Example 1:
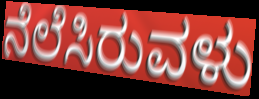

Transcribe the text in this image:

ನೆಲೆಸಿರುವಳು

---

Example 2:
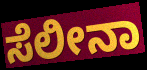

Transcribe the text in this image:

ಸೆಲೀನಾ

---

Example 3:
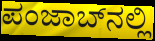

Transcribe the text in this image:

ಪಂಜಾಬ್‌ನಲ್ಲಿ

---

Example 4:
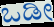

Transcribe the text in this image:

ಒಡೀ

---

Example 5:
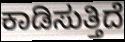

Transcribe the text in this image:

ಕಾಡಿಸುತ್ತಿದೆ